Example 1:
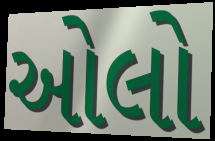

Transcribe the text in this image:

ઓલો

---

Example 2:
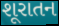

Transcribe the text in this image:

શૂરાતન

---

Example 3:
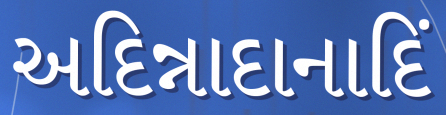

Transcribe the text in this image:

અદિન્નાદાનાદિં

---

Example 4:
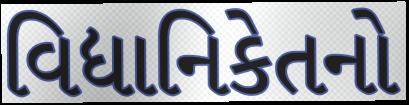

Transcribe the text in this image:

વિદ્યાનિકેતનો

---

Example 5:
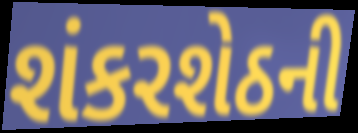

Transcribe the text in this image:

શંકરશેઠની